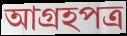
আগ্রহপত্র